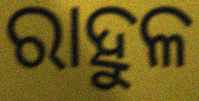
ରାହୁଳ